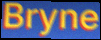
Bryne